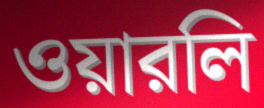
ওয়ারলি